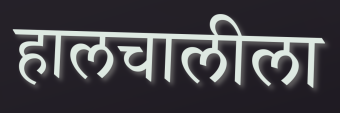
हालचालीला